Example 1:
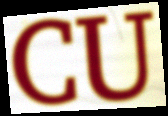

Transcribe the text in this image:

CU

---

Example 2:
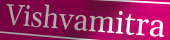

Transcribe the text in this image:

Vishvamitra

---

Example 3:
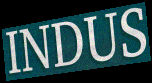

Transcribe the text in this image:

INDUS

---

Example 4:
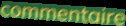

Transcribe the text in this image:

commentaire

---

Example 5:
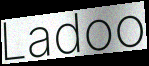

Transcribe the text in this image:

Ladoo